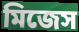
মিজেস